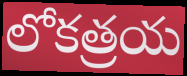
లోకత్రయ